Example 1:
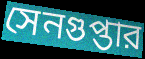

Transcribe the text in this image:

সেনগুপ্তার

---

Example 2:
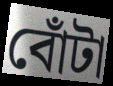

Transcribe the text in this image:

বোঁটা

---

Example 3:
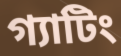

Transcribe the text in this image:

গ্যাটিং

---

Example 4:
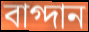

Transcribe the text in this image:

বাগ্দান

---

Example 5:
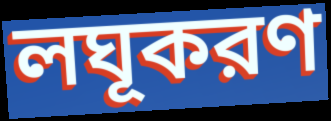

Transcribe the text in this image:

লঘূকরণ